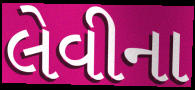
લેવીના